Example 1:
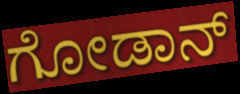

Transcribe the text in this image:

ಗೋಡಾನ್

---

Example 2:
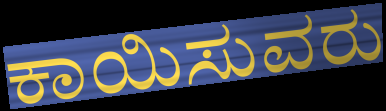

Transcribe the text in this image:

ಕಾಯಿಸುವರು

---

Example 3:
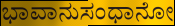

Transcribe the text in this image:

ಭಾವಾನುಸಂಧಾನೋ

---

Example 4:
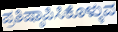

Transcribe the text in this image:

ಪ್ರತಿಷ್ಠಾಪಿಸಿಕೊಳ್ಳುವ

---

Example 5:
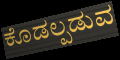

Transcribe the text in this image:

ಕೊಡಲ್ಪಡುವ